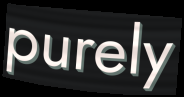
purely